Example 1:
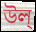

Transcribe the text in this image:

উল্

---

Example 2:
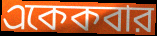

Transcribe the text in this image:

একেকবার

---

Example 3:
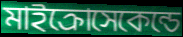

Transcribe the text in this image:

মাইক্রোসেকেন্ডে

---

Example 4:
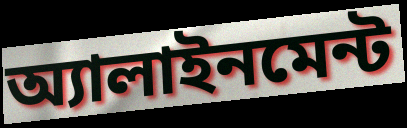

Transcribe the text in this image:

অ্যালাইনমেন্ট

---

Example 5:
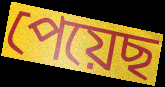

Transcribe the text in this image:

পেয়েছ